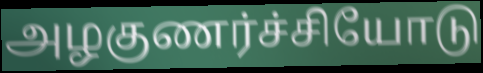
அழகுணர்ச்சியோடு